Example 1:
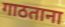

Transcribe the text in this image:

गाठताना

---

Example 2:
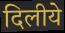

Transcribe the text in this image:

दिलीये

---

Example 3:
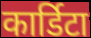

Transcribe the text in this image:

कार्डिटा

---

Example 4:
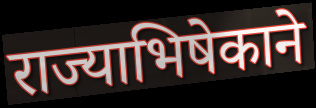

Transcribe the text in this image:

राज्याभिषेकाने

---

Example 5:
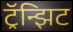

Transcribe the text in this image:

ट्रॅन्झिट